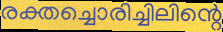
രക്തച്ചൊരിച്ചിലിന്റെ